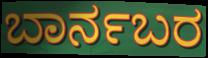
ಬಾರ್ನಬರ